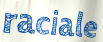
raciale